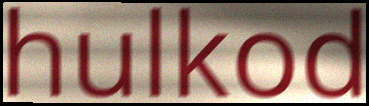
hulkod